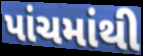
પાંચમાંથી